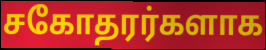
சகோதரர்களாக